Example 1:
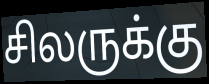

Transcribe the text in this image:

சிலருக்கு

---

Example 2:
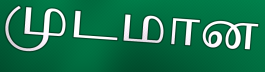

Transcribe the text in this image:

முடமான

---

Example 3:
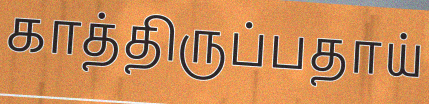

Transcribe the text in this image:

காத்திருப்பதாய்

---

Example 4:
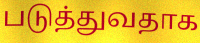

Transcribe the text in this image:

படுத்துவதாக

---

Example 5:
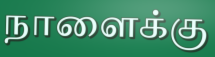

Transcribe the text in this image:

நாளைக்கு